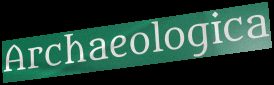
Archaeologica